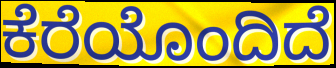
ಕೆರೆಯೊಂದಿದೆ